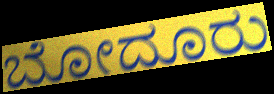
ಬೋದೂರು